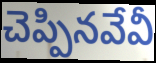
చెప్పినవేవీ